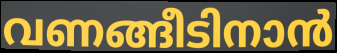
വണങ്ങീടിനാൻ